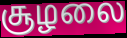
சூழலை